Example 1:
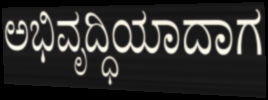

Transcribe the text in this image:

ಅಭಿವೃದ್ಧಿಯಾದಾಗ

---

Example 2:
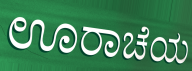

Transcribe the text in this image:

ಊರಾಚೆಯ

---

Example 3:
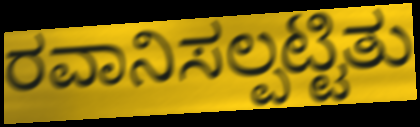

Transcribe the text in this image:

ರವಾನಿಸಲ್ಪಟ್ಟಿತು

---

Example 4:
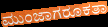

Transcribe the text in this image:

ಮುಂಜಾಗರೂಕತಾ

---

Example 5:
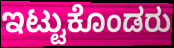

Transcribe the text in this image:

ಇಟ್ಟುಕೊಂಡರು